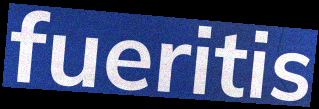
fueritis